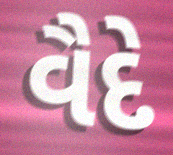
વૈદે